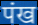
पंख